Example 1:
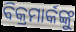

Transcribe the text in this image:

ବିକ୍ରମାର୍କଙ୍କୁ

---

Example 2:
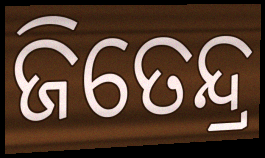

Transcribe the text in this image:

ଜିତେନ୍ଦ୍ର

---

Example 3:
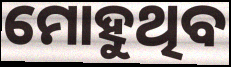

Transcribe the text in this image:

ମୋହୁଥିବ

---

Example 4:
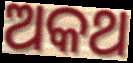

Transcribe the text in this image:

ଅକଥ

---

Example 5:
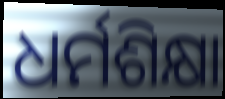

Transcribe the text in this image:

ଧର୍ମଶିକ୍ଷା